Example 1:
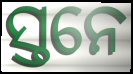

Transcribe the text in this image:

ସ୍ତନେ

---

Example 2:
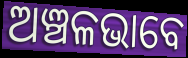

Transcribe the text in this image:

ଅଞ୍ଚଳଭାବେ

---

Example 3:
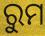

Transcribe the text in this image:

ରୁମ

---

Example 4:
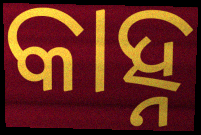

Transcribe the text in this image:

କାହ୍ନ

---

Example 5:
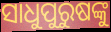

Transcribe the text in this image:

ସାଧୁପୁରୁଷଙ୍କୁ